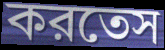
করতেস